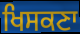
ਖਿਸਕਣਾ